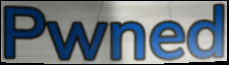
Pwned